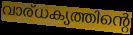
വാര്ധക്യത്തിന്റെ